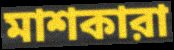
মাশকারা